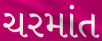
ચરમાંત